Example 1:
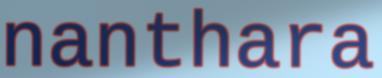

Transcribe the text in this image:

nanthara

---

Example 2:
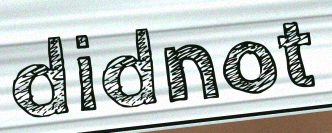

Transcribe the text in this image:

didnot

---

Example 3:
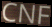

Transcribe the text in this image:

CNF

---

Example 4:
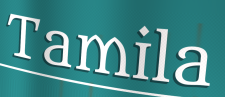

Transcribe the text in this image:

Tamila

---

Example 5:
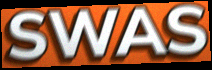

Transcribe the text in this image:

SWAS